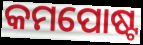
କମପୋଷ୍ଟ